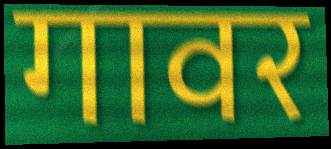
गावर